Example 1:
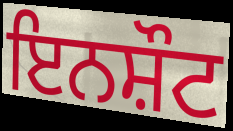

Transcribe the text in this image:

ਇਨਸ਼ੌਟ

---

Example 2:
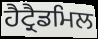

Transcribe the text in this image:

ਹੈਟ੍ਰੈਡਮਿਲ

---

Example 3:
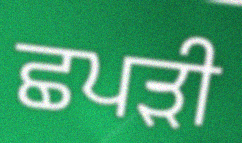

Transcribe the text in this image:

ਛਪੜੀ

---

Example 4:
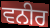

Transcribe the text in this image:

ਵਨੀਰ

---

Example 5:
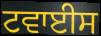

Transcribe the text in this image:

ਟਵਾਈਸ